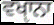
ਵਖੵਾਨਾ